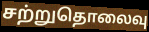
சற்றுதொலைவு